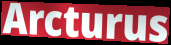
Arcturus